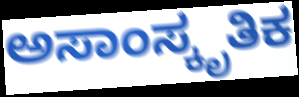
ಅಸಾಂಸ್ಕೃತಿಕ